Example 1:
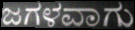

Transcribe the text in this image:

ಜಗಳವಾಗು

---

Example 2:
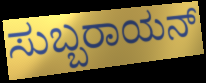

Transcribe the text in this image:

ಸುಬ್ಬರಾಯನ್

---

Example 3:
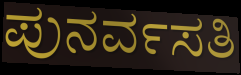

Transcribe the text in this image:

ಪುನರ್ವಸತಿ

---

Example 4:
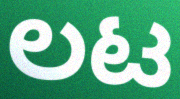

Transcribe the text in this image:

ಲಟ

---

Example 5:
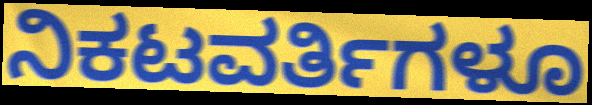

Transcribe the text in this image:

ನಿಕಟವರ್ತಿಗಳೂ